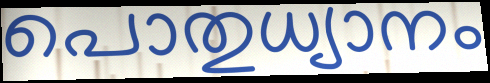
പൊതുധ്യാനം